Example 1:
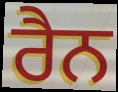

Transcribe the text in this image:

ਰੈਨ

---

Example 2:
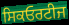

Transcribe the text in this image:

ਸਿਕਓਰਟੀਜ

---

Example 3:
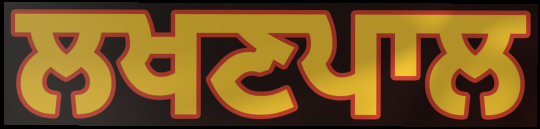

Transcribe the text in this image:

ਲਖਣਪਾਲ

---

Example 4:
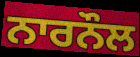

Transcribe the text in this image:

ਨਾਰਨੌਲ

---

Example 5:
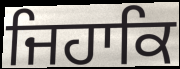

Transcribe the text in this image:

ਜਿਹਾਕਿ